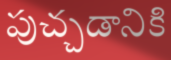
పుచ్చడానికి